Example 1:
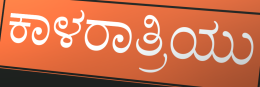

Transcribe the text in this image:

ಕಾಳರಾತ್ರಿಯು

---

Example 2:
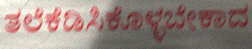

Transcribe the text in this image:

ತಲೆಕೆಡಿಸಿಕೊಳ್ಳಬೇಕಾದ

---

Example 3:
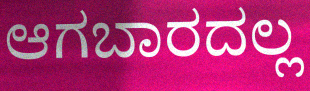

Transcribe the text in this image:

ಆಗಬಾರದಲ್ಲ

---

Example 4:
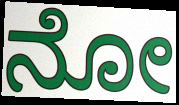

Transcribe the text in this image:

ನೋ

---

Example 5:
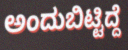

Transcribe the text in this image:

ಅಂದುಬಿಟ್ಟಿದ್ದೆ